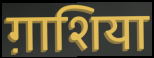
ग़ाशिया